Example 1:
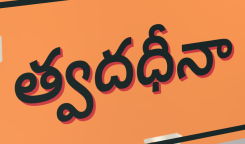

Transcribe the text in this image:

త్వదధీనా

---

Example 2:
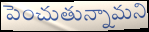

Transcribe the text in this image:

పెంచుతున్నామని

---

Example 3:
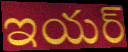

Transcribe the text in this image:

ఇయర్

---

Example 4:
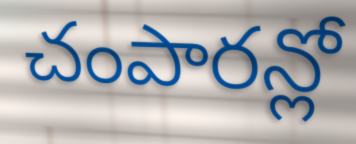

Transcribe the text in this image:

చంపారన్లో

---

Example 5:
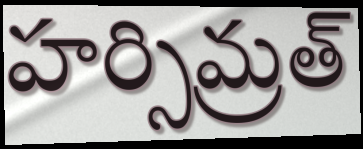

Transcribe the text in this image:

హర్సిమ్రత్